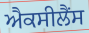
ਐਕਸੀਲੈਂਸ